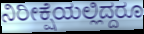
ನಿರೀಕ್ಷೆಯಲ್ಲಿದ್ದರೂ